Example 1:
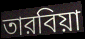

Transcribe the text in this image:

তারবিয়া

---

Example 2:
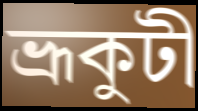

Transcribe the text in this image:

ভ্রূকুটী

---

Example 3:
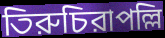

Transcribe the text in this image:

তিরুচিরাপল্লি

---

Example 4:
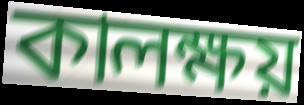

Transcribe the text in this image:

কালক্ষয়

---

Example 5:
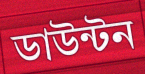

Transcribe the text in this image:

ডাউন্টন